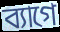
ব্যাগে